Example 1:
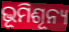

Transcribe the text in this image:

ଭୂମିଶୂନ୍ୟ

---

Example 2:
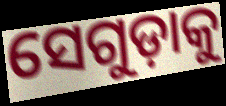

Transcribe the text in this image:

ସେଗୁଡ଼ାକୁ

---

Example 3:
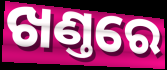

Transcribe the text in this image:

ଖଣ୍ତରେ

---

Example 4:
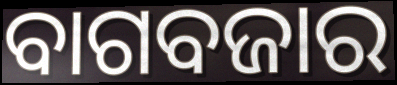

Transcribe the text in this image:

ବାଗବଜାର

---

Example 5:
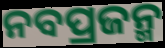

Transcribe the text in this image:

ନବପ୍ରଜନ୍ମ